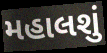
મહાલશું